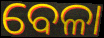
ବେଳା